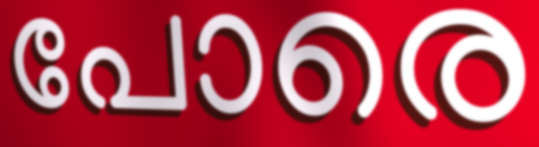
പോരെ